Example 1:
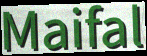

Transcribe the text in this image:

Maifal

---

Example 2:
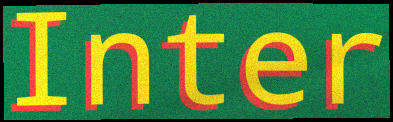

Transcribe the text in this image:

Inter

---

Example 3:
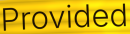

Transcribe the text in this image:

Provided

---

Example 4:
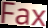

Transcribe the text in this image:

Fax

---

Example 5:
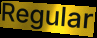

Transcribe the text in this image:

Regular